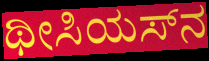
ಥೀಸಿಯಸ್‌ನ